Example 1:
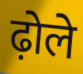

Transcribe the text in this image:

ढ़ोले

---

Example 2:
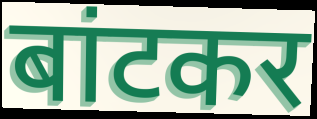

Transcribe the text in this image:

बांटकर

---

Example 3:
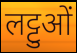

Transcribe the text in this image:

लट्टुओं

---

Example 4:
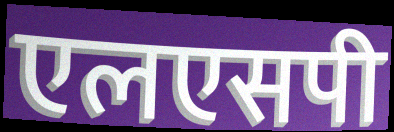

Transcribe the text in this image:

एलएसपी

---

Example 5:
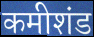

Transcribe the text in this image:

कमीशंड